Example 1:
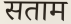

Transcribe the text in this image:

सताम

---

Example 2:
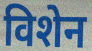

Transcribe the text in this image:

विशेन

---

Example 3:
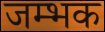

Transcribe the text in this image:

जम्भक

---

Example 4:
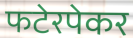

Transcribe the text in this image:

फटेरपेकर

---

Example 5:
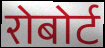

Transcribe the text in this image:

रोबोर्ट